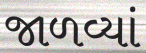
જાળવ્યાં